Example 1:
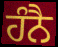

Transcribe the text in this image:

ਹੰਨੈ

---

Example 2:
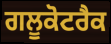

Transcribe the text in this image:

ਗਲੂਕੋਟਰੈਕ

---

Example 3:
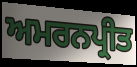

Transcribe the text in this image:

ਅਮਰਨਪ੍ਰੀਤ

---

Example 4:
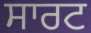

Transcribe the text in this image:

ਸਾਰਟ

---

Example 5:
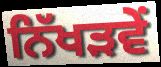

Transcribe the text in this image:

ਨਿੱਖੜਵੇਂ